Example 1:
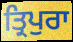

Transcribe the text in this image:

ਤ੍ਰਿਪੁਰਾ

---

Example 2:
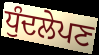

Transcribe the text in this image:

ਧੁੰਦਲੇਪਣ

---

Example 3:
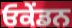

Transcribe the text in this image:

ਓਕੇਂਡਨ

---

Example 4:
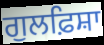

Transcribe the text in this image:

ਗੁਲਫ਼ਿਸ਼ਾ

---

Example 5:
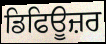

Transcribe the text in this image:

ਡਿਫਿਊਜ਼ਰ